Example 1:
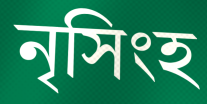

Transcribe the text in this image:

নৃসিংহ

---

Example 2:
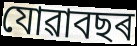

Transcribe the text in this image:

যোৱাবছৰ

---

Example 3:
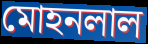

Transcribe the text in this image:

মোহনলাল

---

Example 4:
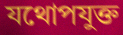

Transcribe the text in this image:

যথোপযুক্ত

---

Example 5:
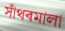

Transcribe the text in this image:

সাঁথৰমালা